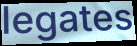
legates